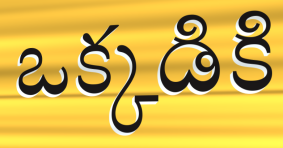
ఒక్కడికి